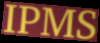
IPMS